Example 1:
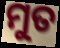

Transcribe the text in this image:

ମୁତ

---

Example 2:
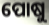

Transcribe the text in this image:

ପୋଷୁ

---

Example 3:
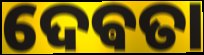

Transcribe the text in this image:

ଦେଵତା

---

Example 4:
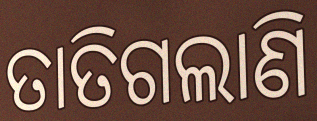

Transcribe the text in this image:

ତାତିଗଲାଣି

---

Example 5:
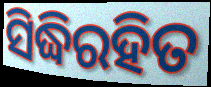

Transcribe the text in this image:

ସିଦ୍ଧିରହିତ